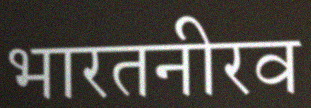
भारतनीरव